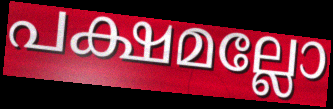
പക്ഷമല്ലോ